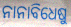
ନାନାବିଧେଷୁ